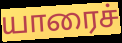
யாரைச்